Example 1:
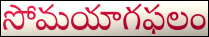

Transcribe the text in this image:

సోమయాగఫలం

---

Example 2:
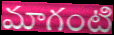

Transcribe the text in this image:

మాగంటి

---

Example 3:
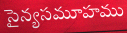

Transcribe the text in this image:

సైన్యసమూహము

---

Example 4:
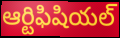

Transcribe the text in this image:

ఆర్టిఫిషియల్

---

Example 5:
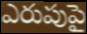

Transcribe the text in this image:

ఎరుపుపై